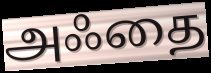
அஃதை